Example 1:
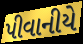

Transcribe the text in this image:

પીવાનીયે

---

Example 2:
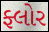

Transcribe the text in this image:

ફ્લોર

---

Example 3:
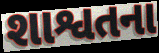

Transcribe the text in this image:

શાશ્વતના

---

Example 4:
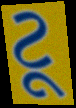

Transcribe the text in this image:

ટૂ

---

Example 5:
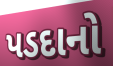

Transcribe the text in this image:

પડદાનો